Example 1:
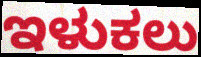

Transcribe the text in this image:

ಇಳುಕಲು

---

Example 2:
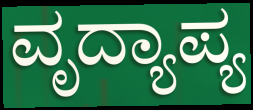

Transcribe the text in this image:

ವೃದ್ಯಾಪ್ಯ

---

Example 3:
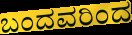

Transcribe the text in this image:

ಬಂದವರಿಂದ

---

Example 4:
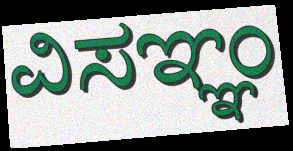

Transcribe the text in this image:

ವಿಸಞ್ಞಂ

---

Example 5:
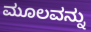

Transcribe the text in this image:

ಮೂಲವನ್ನು